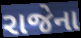
રાજેના